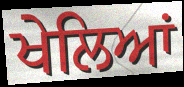
ਖੇਲਿਆਂ